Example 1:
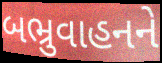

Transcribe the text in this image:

બભ્રુવાહનને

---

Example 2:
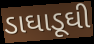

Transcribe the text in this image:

ડાઘાડૂઘી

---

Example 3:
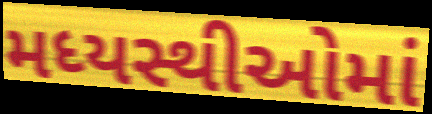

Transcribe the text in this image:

મધ્યસ્થીઓમાં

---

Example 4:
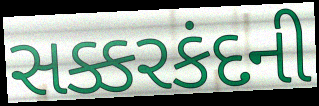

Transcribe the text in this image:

સક્કરકંદની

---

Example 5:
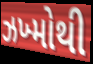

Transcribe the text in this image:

ઝખ્મોથી